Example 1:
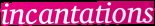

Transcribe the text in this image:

incantations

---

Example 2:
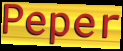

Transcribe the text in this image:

Peper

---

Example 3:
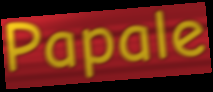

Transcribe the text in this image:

Papale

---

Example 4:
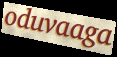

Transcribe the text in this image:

oduvaaga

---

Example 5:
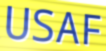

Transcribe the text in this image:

USAF